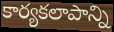
కార్యకలాపాన్ని